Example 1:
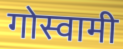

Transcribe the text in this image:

गोस्वामी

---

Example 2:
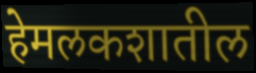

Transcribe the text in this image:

हेमलकशातील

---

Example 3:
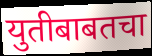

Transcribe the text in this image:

युतीबाबतचा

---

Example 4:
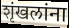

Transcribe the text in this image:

शृंखलांना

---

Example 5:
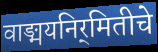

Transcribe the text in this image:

वाङ्मयनिर्मितीचे